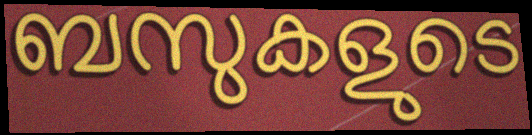
ബസുകളുടെ